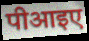
पीआइए